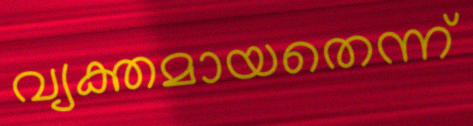
വ്യക്തമായതെന്ന്